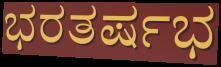
ಭರತರ್ಷಭ